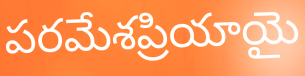
పరమేశప్రియాయై